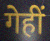
गेहीं